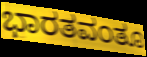
ಭಾರತವಂತೂ